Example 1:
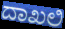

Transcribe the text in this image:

ದಾಖಲಿ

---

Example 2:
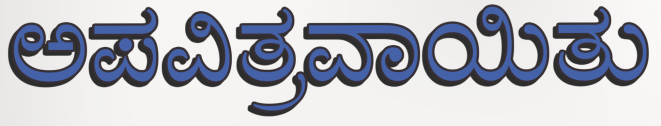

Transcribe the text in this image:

ಅಪವಿತ್ರವಾಯಿತು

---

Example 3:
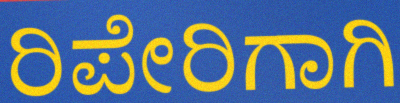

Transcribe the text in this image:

ರಿಪೇರಿಗಾಗಿ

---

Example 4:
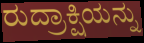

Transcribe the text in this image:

ರುದ್ರಾಕ್ಷಿಯನ್ನು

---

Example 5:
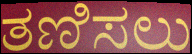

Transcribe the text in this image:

ತಣಿಸಲು